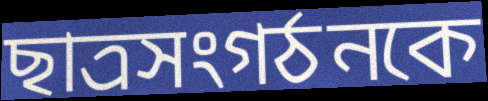
ছাত্রসংগঠনকে